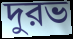
দুরভ